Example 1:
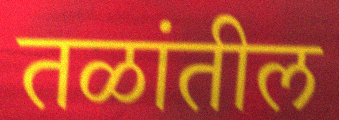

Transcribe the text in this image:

तळांतील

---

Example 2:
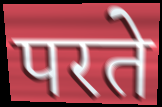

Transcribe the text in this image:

परते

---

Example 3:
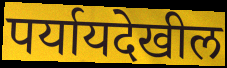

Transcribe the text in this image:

पर्यायदेखील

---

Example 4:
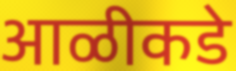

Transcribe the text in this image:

आळीकडे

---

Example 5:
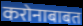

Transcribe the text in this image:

करोनाबाबत